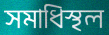
সমাধিস্থল